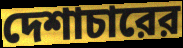
দেশাচারের